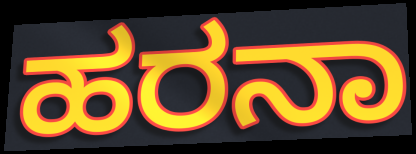
ಹರನಾ